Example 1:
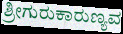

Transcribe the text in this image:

ಶ್ರೀಗುರುಕಾರುಣ್ಯವ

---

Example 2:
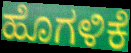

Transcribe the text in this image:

ಹೊಗಳಿಕೆ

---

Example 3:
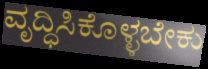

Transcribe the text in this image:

ವೃದ್ಧಿಸಿಕೊಳ್ಳಬೇಕು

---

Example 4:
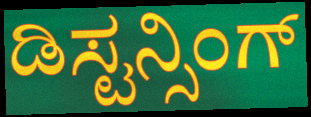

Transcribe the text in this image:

ಡಿಸ್ಟನ್ಸಿಂಗ್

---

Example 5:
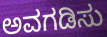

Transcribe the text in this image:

ಅವಗಡಿಸು